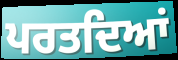
ਪਰਤਦਿਆਂ